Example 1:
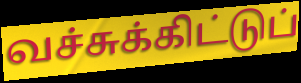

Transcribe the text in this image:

வச்சுக்கிட்டுப்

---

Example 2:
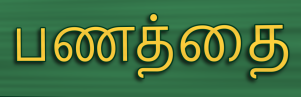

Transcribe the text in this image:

பணத்தை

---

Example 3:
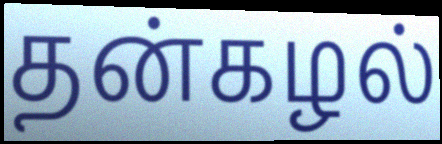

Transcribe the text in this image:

தன்கழல்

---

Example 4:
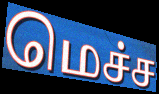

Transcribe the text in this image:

மெச்ச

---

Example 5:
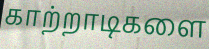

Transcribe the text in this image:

காற்றாடிகளை